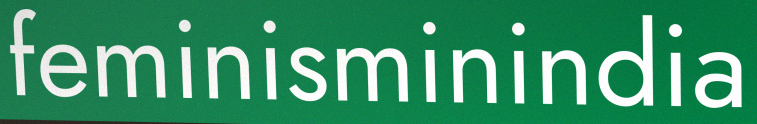
feminisminindia